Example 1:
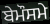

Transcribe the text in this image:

ਬੇਮੌਸਮੇ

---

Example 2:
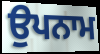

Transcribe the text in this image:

ਉਪਨਾਮ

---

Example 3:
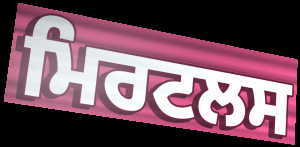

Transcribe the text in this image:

ਮਿਰਟਲਸ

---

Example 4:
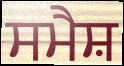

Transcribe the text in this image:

ਸਮੈਸ਼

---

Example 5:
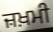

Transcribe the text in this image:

ਜ਼ਖ਼ਮੀ